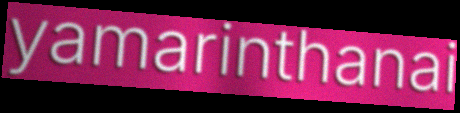
yamarinthanai